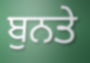
ਬੁਨਤੇ